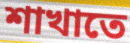
শাখাতে